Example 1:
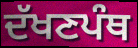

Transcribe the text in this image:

ਦੱਖਣਪੰਥ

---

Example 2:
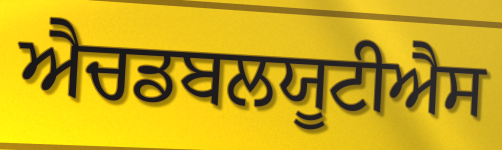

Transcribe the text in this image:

ਐਚਡਬਲਯੂਟੀਐਸ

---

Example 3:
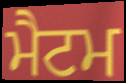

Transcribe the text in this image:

ਮੈਟਮ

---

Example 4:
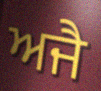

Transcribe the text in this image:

ਅਜੈ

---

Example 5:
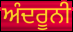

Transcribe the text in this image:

ਅੰਦਰੂਨੀ